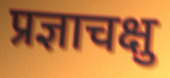
प्रज्ञाचक्षु